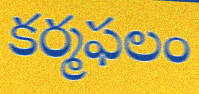
కర్మఫలం